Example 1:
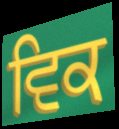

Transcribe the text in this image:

ਵਿਕ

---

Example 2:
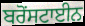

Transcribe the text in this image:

ਬਰੋਂਸਟਾਈਨ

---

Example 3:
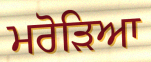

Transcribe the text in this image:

ਮਰੋੜਿਆ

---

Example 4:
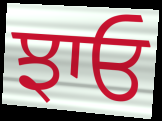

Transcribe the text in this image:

ਝਾਓ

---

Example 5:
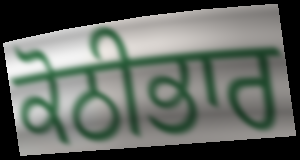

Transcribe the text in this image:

ਕੋਠੀਭਾਰ